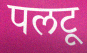
पलटू